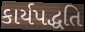
કાર્યપદ્ધતિ